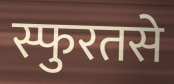
स्फुरतसे